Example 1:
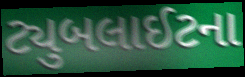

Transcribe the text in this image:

ટ્યુબલાઈટના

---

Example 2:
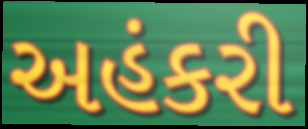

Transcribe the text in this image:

અહંકરી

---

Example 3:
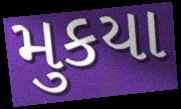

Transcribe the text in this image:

મુકયા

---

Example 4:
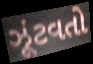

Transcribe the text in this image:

ઝૂંટવતો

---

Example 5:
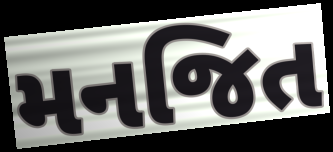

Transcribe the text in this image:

મનજિત